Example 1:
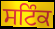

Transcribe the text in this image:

ਸਟਿੰਕ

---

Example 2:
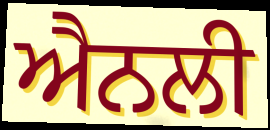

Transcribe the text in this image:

ਐਨਲੀ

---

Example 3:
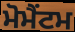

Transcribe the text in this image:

ਮੋਮੈਂਟਮ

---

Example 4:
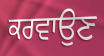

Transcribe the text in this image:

ਕਰਵਾਉਣ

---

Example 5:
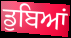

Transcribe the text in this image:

ਡੁਬਿਆਂ